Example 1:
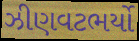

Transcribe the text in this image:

ઝીણવટભર્યો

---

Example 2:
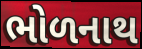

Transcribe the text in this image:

ભોળનાથ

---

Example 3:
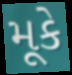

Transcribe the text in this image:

મૂકે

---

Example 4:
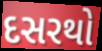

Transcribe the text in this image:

દસરથો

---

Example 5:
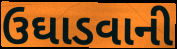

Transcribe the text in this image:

ઉઘાડવાની